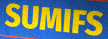
SUMIFS